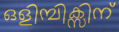
ഒളിമ്പിക്സിന്